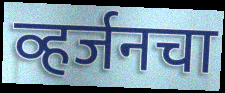
व्हर्जनचा